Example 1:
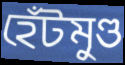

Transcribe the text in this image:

হেঁটমুণ্ড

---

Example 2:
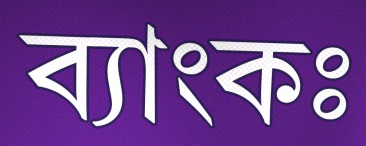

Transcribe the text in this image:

ব্যাংকঃ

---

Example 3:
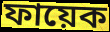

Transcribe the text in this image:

ফায়েক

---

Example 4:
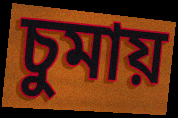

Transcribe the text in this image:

চুমায়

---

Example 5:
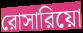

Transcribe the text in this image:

রোসারিয়ো